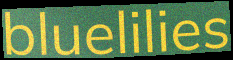
bluelilies